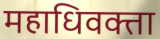
महाधिवक्ता